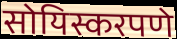
सोयिस्करपणे